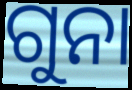
ଗୁନା